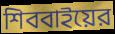
শিববাইয়ের